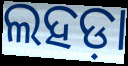
ଲହଡ଼ା